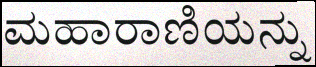
ಮಹಾರಾಣಿಯನ್ನು